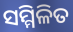
ସମ୍ମିଳିତ